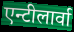
एन्टीलार्वा